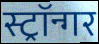
स्ट्रॉन्गर